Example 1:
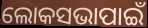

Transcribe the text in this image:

ଲୋକସଭାପାଇଁ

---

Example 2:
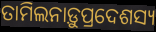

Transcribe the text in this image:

ତାମିଲନାଡ଼ୁପ୍ରଦେଶସ୍ୟ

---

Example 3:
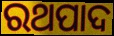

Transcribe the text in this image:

ରଥପାଦ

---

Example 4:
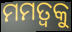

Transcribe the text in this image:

ମମତ୍ୱକୁ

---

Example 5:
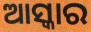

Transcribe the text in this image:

ଆସ୍କାର